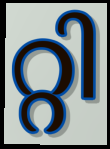
റ്റി